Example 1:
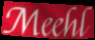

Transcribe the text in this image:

Meehl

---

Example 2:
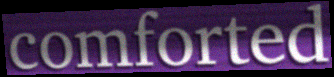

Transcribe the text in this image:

comforted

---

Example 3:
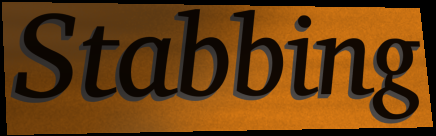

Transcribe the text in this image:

Stabbing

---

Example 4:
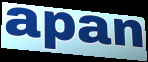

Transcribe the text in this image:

apan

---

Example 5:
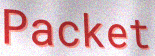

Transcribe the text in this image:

Packet